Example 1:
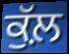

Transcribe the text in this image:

ਕੁੱਲ਼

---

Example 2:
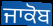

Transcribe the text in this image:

ਜਾਕੋਬ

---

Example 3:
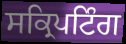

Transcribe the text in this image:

ਸਕ੍ਰਿਪਟਿੰਗ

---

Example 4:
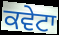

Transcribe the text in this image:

ਕਵੇਟਾ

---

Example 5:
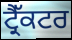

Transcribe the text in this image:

ਟ੍ਰੈੱਕਟਰ